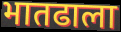
भातढाला